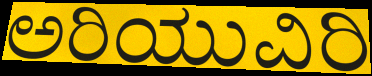
ಅರಿಯುವಿರಿ